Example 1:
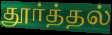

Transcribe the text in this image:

தூர்த்தல்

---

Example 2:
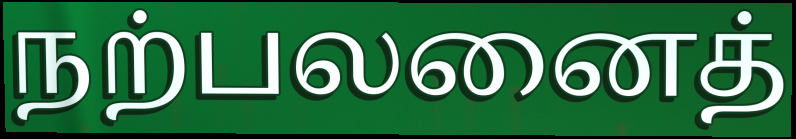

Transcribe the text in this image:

நற்பலனைத்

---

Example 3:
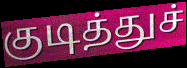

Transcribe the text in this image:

குடித்துச்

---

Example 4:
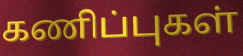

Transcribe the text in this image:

கணிப்புகள்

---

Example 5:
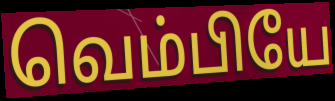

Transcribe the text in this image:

வெம்பியே